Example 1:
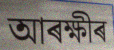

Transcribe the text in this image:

আৰক্ষীৰ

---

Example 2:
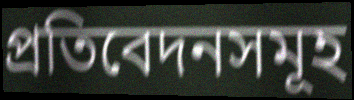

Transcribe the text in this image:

প্ৰতিবেদনসমূহ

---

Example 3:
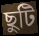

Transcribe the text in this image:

ছুটি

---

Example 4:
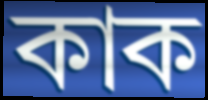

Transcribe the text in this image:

কাক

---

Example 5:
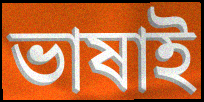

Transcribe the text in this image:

ভাষাই